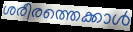
ശരീരത്തെക്കാൾ